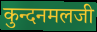
कुन्दनमलजी